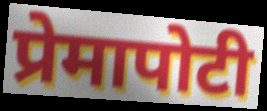
प्रेमापोटी